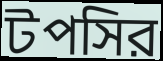
টপসির